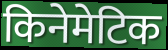
किनेमेटिक